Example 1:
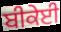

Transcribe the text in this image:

ਬੀਕੇਈ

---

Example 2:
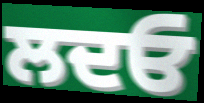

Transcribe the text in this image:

ਲਦਓ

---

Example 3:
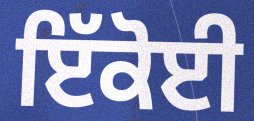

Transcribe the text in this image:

ਇੱਕੋਈ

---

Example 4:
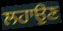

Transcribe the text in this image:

ਲਹਾਉਣ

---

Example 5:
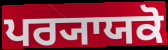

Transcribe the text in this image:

ਪਰ੍ਯਾਯਕੋ